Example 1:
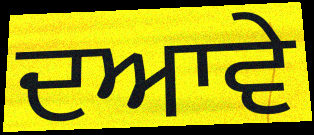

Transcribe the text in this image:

ਦਆਵੇ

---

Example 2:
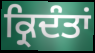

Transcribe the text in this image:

ਕ੍ਰਿਦੰਤਾਂ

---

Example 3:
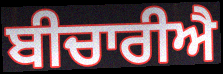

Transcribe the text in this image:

ਬੀਚਾਰੀਐ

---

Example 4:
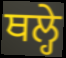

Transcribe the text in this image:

ਥਲ੍ਹੇ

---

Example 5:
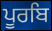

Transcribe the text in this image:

ਪੂਰਬਿ